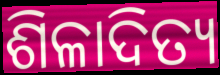
ଶିଳାଦିତ୍ୟ